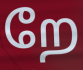
றே